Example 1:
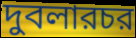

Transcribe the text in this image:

দুবলারচর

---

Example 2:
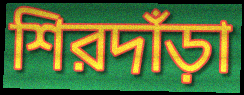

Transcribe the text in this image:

শিরদাঁড়া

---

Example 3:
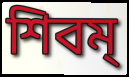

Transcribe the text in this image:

শিবম্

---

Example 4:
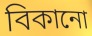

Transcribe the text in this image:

বিকানো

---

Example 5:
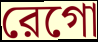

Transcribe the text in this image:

রেগো